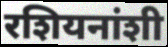
रशियनांशी